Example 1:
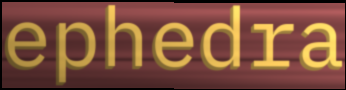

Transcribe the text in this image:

ephedra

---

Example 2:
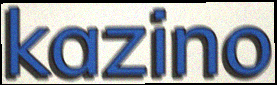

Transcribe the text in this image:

kazino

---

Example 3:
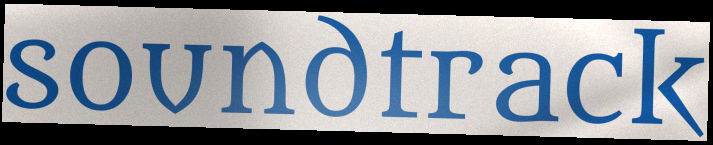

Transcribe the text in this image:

soundtrack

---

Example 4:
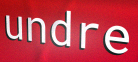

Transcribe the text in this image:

undre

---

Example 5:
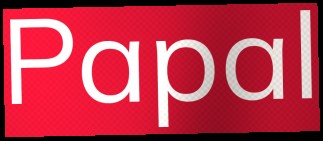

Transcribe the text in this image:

Papal